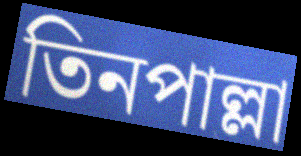
তিনপাল্লা